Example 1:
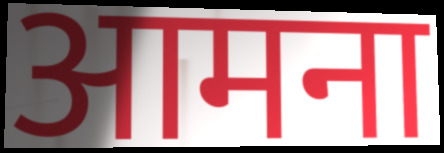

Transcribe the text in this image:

आमना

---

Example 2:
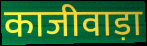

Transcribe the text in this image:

काजीवाड़ा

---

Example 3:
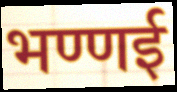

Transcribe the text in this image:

भण्णई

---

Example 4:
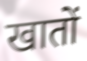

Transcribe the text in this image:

खातों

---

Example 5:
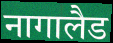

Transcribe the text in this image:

नागालैड